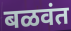
बळवंत